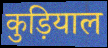
कुड़ियाल